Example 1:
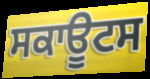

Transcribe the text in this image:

ਸਕਾਊਟਸ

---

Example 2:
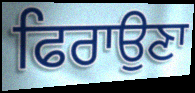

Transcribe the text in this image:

ਫਿਰਾਉਣਾ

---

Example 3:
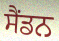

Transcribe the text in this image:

ਸੈਂਡਨ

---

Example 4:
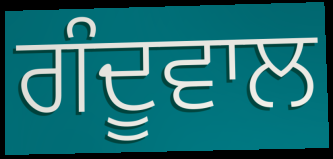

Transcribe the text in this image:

ਗੰਦੂਵਾਲ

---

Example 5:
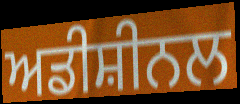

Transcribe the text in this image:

ਅਡੀਸ਼ੀਨਲ